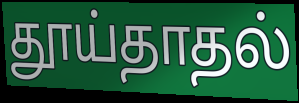
தூய்தாதல்